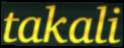
takali